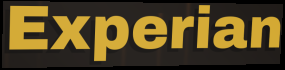
Experian